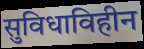
सुविधाविहीन